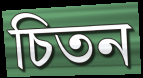
চিতন